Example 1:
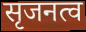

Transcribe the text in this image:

सृजनत्व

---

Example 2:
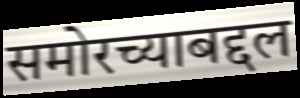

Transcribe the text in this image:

समोरच्याबद्दल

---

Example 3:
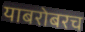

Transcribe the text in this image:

याबरोबरच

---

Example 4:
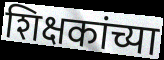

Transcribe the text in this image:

शिक्षकांच्या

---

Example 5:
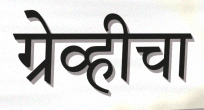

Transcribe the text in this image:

ग्रेव्हीचा